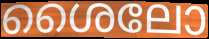
ശൈലോ